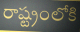
రాష్ట్రంలోకి